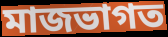
মাজভাগত